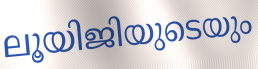
ലൂയിജിയുടെയും